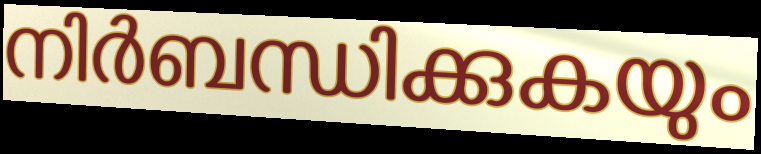
നിർബന്ധിക്കുകയും